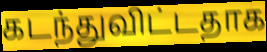
கடந்துவிட்டதாக